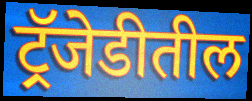
ट्रॅजेडीतील